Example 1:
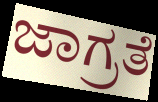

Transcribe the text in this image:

ಜಾಗ್ರತೆ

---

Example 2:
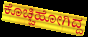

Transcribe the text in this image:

ಕೊಚ್ಚಿಹೋಗಿದ್ದ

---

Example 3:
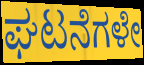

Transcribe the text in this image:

ಘಟನೆಗಳೇ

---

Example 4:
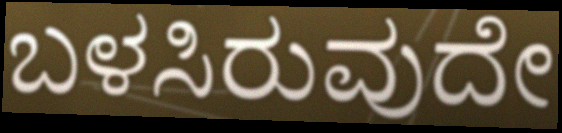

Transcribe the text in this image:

ಬಳಸಿರುವುದೇ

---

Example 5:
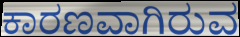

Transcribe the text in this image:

ಕಾರಣವಾಗಿರುವ